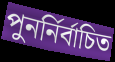
পুনর্নির্বাচিত